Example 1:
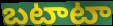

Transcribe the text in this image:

బటాటా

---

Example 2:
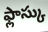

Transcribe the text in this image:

ఫ్లాస్కు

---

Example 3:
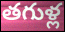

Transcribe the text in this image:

తగుళ్ల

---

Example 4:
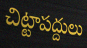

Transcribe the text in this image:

చిట్టాపద్దులు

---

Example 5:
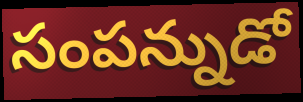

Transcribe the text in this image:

సంపన్నుడో